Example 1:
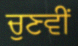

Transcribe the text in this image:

ਚੁਣਵੀਂ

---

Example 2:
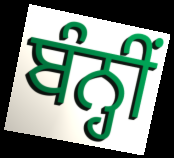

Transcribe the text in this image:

ਬੰਨ੍ਹੀਂ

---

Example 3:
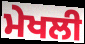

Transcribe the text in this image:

ਮੇਖਲੀ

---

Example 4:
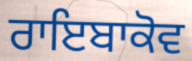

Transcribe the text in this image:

ਰਾਇਬਾਕੋਵ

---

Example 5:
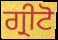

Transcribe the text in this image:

ਗ੍ਰੀਟੋ